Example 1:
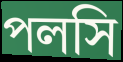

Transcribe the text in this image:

পলসি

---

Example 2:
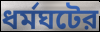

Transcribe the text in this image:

ধর্মঘটের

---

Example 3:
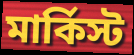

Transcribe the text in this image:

মার্কিস্ট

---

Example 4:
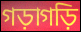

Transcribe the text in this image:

গড়াগড়ি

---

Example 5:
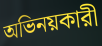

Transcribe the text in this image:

অভিনয়কারী